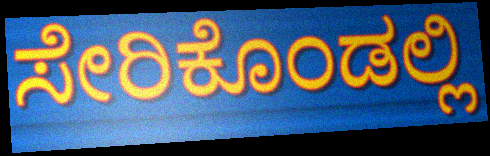
ಸೇರಿಕೊಂಡಲ್ಲಿ